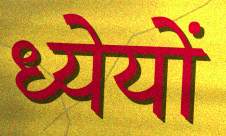
ध्येयों